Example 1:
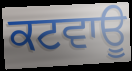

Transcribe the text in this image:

ਕਟਵਾਊ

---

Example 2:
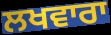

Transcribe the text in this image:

ਲਖਵਾਰਾ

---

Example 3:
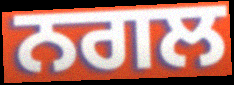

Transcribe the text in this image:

ਨਗਲ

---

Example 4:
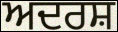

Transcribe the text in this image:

ਅਦਰਸ਼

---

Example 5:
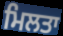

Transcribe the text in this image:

ਮਿਲਤਾ